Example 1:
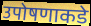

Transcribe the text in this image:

उपोषणाकडे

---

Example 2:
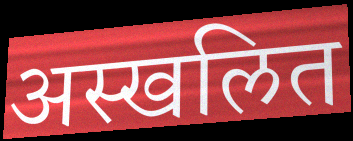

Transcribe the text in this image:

अस्खलित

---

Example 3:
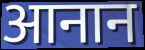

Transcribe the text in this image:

आनान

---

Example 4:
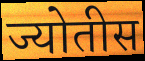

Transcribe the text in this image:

ज्योतीस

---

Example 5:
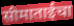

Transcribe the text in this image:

सीमाताईचा